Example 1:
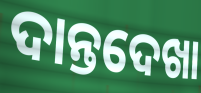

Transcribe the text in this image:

ଦାନ୍ତଦେଖା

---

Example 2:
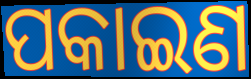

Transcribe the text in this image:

ପକାଇଣ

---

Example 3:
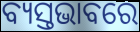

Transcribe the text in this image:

ବ୍ୟସ୍ତଭାବରେ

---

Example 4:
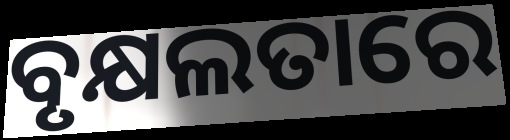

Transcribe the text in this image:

ବୃକ୍ଷଲତାରେ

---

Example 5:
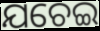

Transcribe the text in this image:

ଯଚେଇ